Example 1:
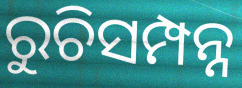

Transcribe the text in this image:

ରୁଚିସମ୍ପନ୍ନ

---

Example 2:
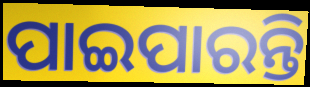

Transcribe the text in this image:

ପାଇପାରନ୍ତି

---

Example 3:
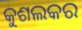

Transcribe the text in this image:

କୁଶଲକର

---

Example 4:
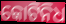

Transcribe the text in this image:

କୋଟିନିଧ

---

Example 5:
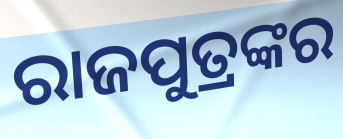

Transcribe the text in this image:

ରାଜପୁତ୍ରଙ୍କର